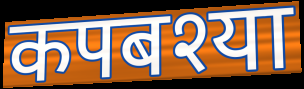
कपबश्या